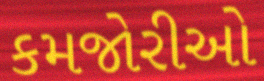
કમજોરીઓ